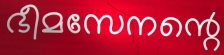
ഭീമസേനന്റെ